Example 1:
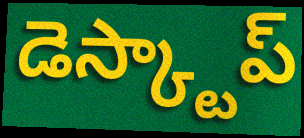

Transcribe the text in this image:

డెస్క్టాప్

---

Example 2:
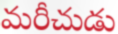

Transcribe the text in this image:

మరీచుడు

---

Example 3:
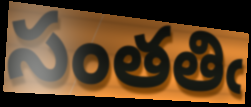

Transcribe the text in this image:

సంతతిఁ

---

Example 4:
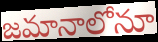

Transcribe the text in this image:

జమానాలోనూ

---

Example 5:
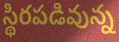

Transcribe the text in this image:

స్థిరపడివున్న